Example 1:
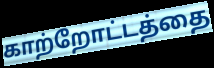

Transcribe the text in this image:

காற்றோட்டத்தை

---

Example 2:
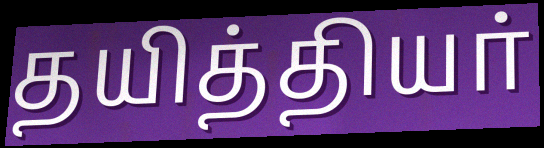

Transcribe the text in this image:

தயித்தியர்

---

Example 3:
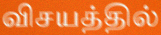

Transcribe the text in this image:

விசயத்தில்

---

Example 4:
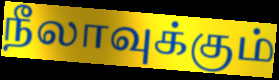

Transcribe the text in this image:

நீலாவுக்கும்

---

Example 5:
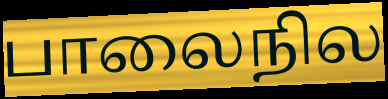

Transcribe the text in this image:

பாலைநில